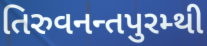
તિરુવનન્તપુરમ્થી